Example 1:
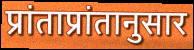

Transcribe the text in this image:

प्रांताप्रांतानुसार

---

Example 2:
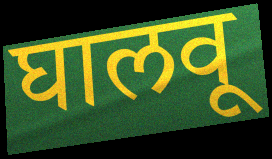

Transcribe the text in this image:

घालवू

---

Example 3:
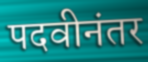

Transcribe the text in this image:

पदवीनंतर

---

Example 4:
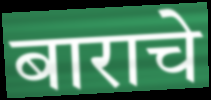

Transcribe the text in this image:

बाराचे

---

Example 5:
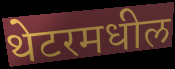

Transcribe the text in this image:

थेटरमधील